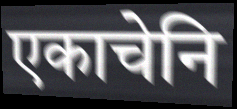
एकाचेनि